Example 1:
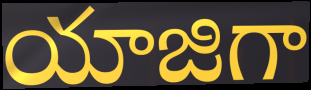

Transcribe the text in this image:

యాజిగా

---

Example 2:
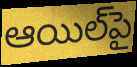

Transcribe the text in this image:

ఆయిల్‌పై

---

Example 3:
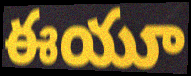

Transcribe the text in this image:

ఈయూ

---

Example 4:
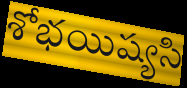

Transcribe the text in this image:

శోభయిష్యసి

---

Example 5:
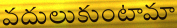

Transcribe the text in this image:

వదులుకుంటామా